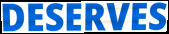
DESERVES